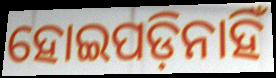
ହୋଇପଡ଼ିନାହିଁ